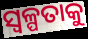
ସ୍ଵଳ୍ପତାକୁ